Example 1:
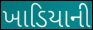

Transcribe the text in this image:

ખાડિયાની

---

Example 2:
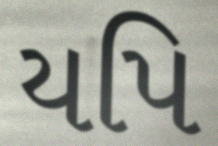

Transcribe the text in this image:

યપિ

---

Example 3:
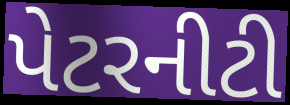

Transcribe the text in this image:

પેટરનીટી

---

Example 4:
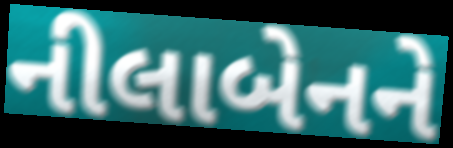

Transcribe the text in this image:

નીલાબેનને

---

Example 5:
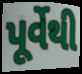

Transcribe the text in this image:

પૂર્વેથી